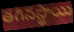
తగినస్థాయి